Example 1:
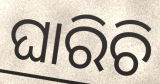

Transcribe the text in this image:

ଘାରିଚି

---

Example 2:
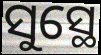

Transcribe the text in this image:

ସୁସ୍ଥେ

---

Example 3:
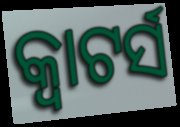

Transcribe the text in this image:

କ୍ଵାଟର୍ସ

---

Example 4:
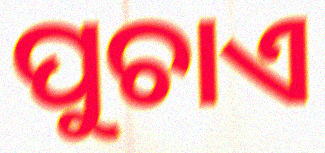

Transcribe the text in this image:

ପୁଚାଏ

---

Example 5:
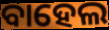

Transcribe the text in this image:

ବାହେଲ